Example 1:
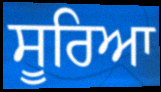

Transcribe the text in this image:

ਸੂਰਿਆ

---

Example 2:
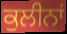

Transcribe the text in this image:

ਕੁਲੀਨਾਂ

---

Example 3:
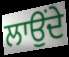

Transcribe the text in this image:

ਲਾਉਂਦੇ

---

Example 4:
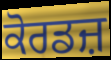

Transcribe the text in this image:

ਕੋਰਡਜ਼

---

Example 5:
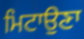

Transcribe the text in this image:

ਮਿਟਾਉਣਾ